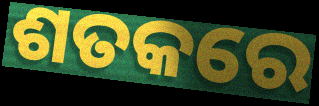
ଶତକରେ